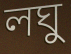
লঘু